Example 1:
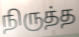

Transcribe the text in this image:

நிருத்த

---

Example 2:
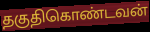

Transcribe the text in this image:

தகுதிகொண்டவன்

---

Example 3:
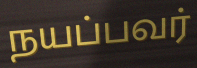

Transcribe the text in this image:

நயப்பவர்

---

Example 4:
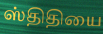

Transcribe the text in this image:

ஸ்திதியை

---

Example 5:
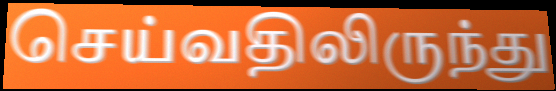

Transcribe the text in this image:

செய்வதிலிருந்து